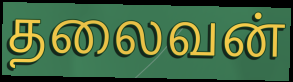
தலைவன்